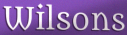
Wilsons